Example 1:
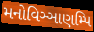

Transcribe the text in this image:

મનોવિઞ્ઞાણમ્પિ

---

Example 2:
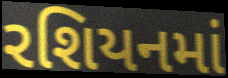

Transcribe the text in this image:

રશિયનમાં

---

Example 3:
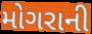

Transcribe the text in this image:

મોગરાની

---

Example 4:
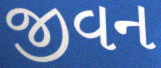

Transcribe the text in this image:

જીવન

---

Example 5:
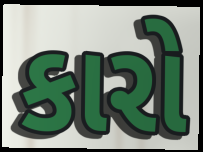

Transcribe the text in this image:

કારો